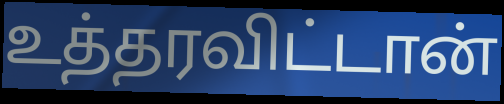
உத்தரவிட்டான்